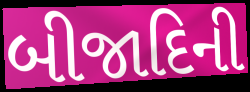
બીજાદિની